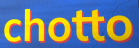
chotto